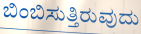
ಬಿಂಬಿಸುತ್ತಿರುವುದು